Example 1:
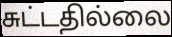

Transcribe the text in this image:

சுட்டதில்லை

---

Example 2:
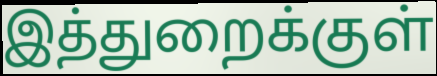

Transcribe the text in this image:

இத்துறைக்குள்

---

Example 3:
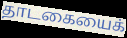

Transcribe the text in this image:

தாடகையைக்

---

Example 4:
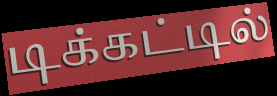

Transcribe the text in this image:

டிக்கட்டில்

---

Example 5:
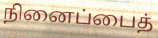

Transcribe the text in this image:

நினைப்பைத்